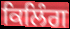
ਕਿਲਿੰਗ